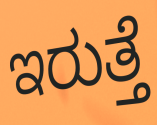
ಇರುತ್ತೆ